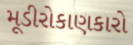
મૂડીરોકાણકારો